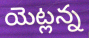
యెట్లన్న